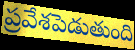
ప్రవేశపెడుతుంది